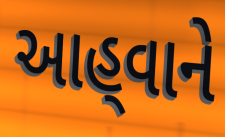
આહ્‌વાને